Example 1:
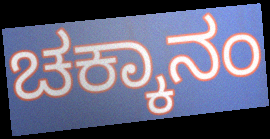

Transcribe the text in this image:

ಚಕ್ಕಾನಂ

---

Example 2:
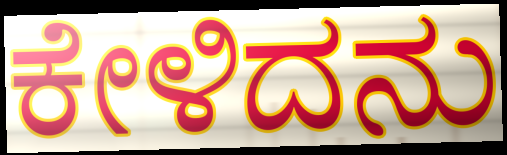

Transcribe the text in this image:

ಕೇಳಿದನು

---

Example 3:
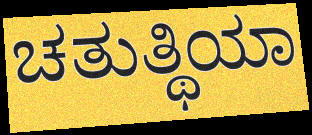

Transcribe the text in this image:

ಚತುತ್ಥಿಯಾ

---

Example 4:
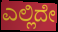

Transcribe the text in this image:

ಎಲ್ಲಿದೇ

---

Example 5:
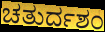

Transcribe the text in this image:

ಚತುರ್ದಶಂ